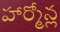
హార్మోన్ల